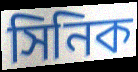
সিনিক